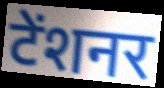
टेंशनर